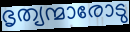
ഭൃത്യന്മാരോടു